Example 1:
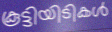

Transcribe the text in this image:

കൂട്ടിയിടികൾ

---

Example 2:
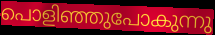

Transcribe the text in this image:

പൊളിഞ്ഞുപോകുന്നു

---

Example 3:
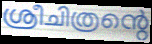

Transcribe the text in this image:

ശ്രീചിത്രന്റെ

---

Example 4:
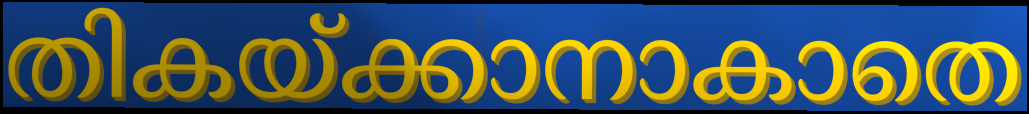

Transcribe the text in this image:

തികയ്ക്കാനാകാതെ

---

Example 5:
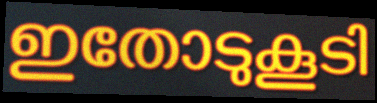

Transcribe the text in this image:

ഇതോടുകൂടി